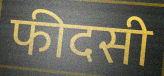
फीदसी